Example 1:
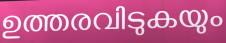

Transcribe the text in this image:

ഉത്തരവിടുകയും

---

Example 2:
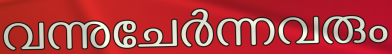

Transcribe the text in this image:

വന്നുചേർന്നവരും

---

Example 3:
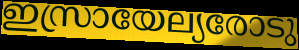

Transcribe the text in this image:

ഇസ്രായേല്യരോടു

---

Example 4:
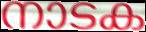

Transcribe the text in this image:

നാടക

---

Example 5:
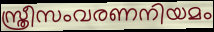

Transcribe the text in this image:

സ്ത്രീസംവരണനിയമം